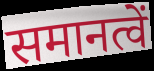
समानत्वें